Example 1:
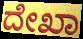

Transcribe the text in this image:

ದೇಖಾ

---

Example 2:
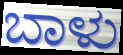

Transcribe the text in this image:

ಬಾಳು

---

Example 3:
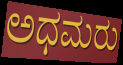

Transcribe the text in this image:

ಅಧಮರು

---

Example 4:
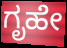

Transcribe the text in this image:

ಗೃಹೇ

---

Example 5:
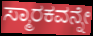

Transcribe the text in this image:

ಸ್ಮಾರಕವನ್ನೇ